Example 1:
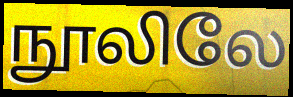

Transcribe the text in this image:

நூலிலே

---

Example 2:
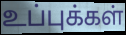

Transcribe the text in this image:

உப்புக்கள்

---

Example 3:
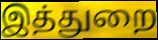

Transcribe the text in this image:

இத்துறை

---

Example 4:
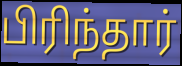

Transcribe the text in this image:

பிரிந்தார்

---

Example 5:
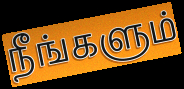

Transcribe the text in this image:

நீங்களும்